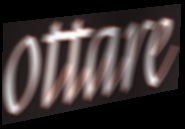
ottare